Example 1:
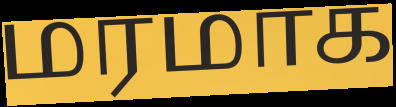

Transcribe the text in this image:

மரமாக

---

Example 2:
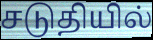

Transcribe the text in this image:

சடுதியில்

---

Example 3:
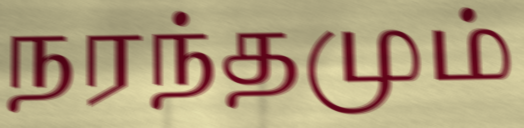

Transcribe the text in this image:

நரந்தமும்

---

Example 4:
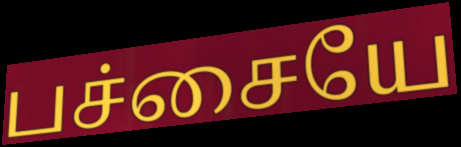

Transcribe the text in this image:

பச்சையே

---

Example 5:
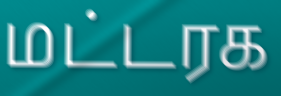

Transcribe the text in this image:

மட்டரக